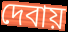
দেবায়